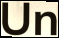
Un